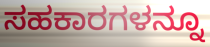
ಸಹಕಾರಗಳನ್ನೂ